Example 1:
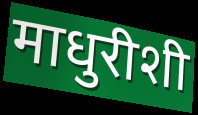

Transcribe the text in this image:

माधुरीशी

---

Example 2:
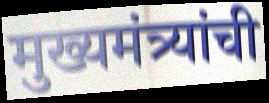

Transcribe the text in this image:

मुख्यमंत्र्यांची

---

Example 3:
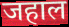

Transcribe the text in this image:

जहाल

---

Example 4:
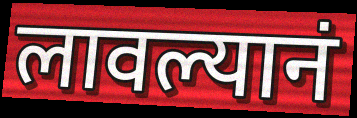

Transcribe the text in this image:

लावल्यानं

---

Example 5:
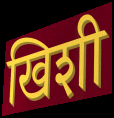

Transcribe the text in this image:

खिशी